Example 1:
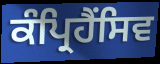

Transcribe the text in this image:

ਕੰਪ੍ਰਿਹੈਂਸਿਵ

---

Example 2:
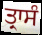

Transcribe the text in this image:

ਤ੍ਰਾਸੰ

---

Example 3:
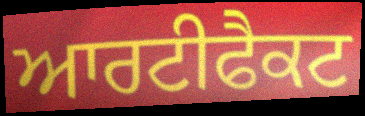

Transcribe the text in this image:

ਆਰਟੀਫੈਕਟ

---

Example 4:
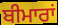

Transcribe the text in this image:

ਬੀਮਾਰਾਂ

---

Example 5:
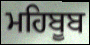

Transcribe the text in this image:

ਮਹਿਬੂਬ